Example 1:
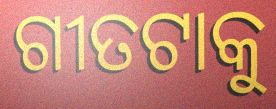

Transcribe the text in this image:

ଗୀତଟାକୁ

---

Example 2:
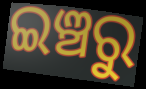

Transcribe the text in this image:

ଇଞ୍ଚରୁ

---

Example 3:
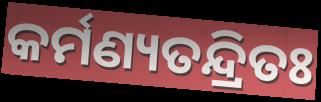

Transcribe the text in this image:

କର୍ମଣ୍ୟତନ୍ଦ୍ରିତଃ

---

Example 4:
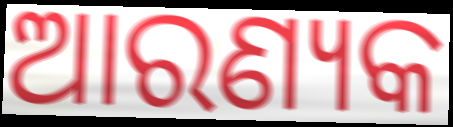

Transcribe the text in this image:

ଆରଣ୍ୟକ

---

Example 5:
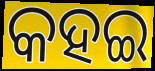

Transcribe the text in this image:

କହଇ